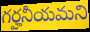
గర్హనీయమని